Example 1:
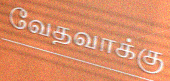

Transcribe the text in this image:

வேதவாக்கு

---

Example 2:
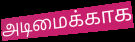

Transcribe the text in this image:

அடிமைக்காக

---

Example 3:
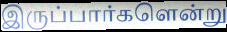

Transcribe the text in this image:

இருப்பார்களென்று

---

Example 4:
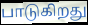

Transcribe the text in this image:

பாடுகிறது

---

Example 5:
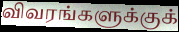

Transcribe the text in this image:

விவரங்களுக்குக்